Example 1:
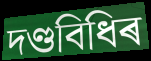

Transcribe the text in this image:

দণ্ডবিধিৰ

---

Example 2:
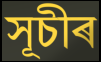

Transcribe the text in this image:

সূচীৰ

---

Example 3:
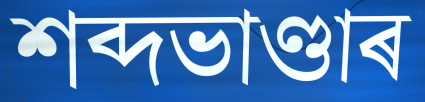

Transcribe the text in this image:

শব্দভাণ্ডাৰ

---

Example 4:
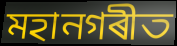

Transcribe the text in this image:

মহানগৰীত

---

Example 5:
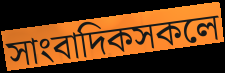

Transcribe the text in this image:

সাংবাদিকসকলে